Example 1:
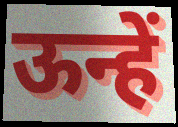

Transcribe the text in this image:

ऊन्हें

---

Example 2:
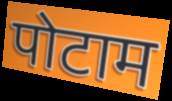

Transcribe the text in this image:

पोटाम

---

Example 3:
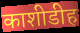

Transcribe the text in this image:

काशीडीह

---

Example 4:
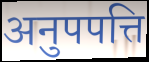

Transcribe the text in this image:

अनुपपत्ति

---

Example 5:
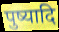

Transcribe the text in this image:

पुष्यादि